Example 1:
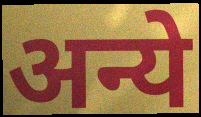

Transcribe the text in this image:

अन्ये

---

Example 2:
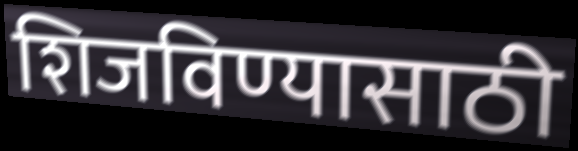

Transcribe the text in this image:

शिजविण्यासाठी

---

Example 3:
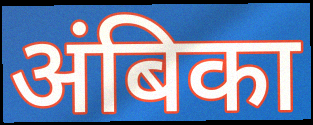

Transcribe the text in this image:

अंबिका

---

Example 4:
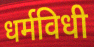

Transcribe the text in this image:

धर्मविधी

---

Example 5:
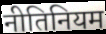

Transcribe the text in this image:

नीतिनियम